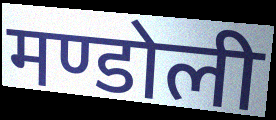
मण्डोली